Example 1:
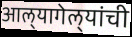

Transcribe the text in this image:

आल्यागेल्यांची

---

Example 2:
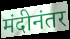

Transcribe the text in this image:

मंदीनंतर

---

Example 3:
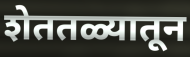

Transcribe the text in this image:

शेततळ्यातून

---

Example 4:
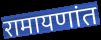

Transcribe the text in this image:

रामायणांत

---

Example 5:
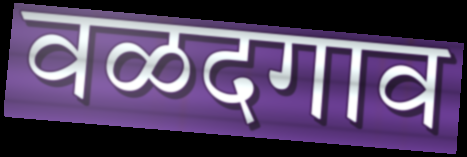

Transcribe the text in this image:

वळदगाव